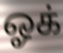
ஓக்